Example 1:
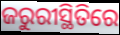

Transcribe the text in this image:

ଜରୁରୀସ୍ଥିତିରେ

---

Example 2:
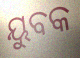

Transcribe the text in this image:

ୟୁବକ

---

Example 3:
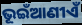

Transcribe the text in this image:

ଭୂଇଁଆଣୀଏଁ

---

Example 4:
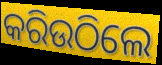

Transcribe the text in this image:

କରିଉଠିଲେ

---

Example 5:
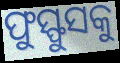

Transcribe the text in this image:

ଫୁସ୍ଫୁସକୁ